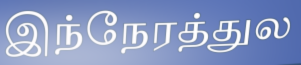
இந்நேரத்துல